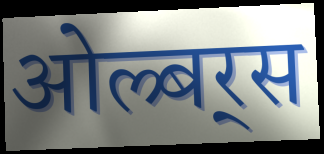
ओल्बर्स